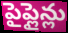
పైప్లైన్లు